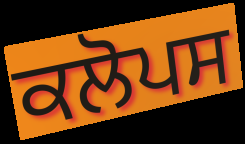
ਕਲੋਪਸ